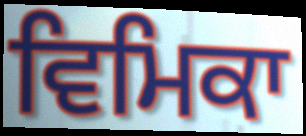
ਵਿਮਿਕਾ